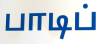
பாடிப்